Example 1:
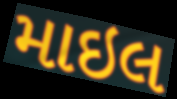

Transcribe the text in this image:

માઇલ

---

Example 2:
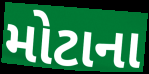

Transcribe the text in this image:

મોટાના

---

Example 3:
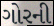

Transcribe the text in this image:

ગોરની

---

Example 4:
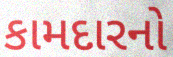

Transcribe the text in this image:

કામદારનો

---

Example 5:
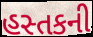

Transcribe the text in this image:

હસ્તકની